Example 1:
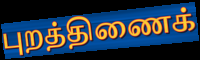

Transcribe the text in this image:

புறத்திணைக்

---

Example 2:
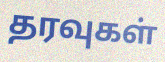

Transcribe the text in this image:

தரவுகள்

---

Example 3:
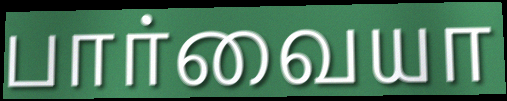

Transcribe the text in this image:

பார்வையா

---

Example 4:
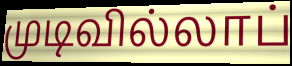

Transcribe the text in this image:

முடிவில்லாப்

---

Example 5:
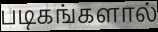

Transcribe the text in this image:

படிகங்களால்